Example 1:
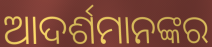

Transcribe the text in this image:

ଆଦର୍ଶମାନଙ୍କର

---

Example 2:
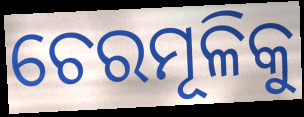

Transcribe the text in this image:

ଚେରମୂଳିକୁ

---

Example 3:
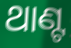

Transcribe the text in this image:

ଥାଣ୍ଟ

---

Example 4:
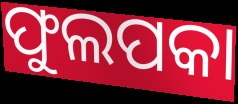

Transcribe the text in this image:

ଫୁଲପକା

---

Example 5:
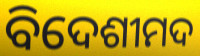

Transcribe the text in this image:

ବିଦେଶୀମଦ